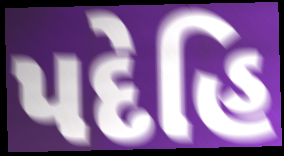
પદેહિ